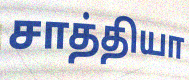
சாத்தியா